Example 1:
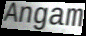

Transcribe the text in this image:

Angam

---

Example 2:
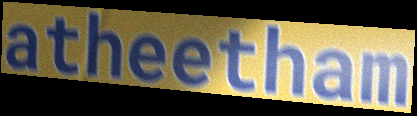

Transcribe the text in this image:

atheetham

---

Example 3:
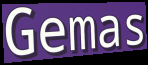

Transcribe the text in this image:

Gemas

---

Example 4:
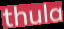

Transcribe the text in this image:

thula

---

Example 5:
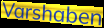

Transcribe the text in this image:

Varshaben